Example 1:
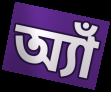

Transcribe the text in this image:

অ্যাঁ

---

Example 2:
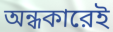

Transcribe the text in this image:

অন্ধকারেই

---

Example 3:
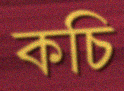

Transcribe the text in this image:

কচি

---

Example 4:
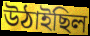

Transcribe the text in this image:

উঠাইছিল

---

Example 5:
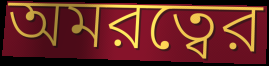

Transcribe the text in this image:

অমরত্বের